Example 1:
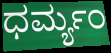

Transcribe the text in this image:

ಧರ್ಮ್ಯಂ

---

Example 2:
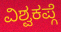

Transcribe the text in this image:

ವಿಶ್ವಕಪ್ಗೆ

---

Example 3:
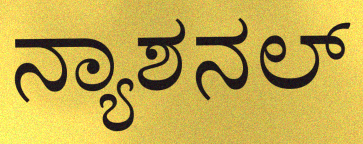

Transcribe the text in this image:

ನ್ಯಾಶನಲ್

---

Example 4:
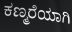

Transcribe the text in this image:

ಕಣ್ಮರೆಯಾಗಿ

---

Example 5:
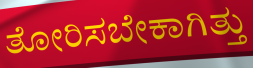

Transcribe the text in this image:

ತೋರಿಸಬೇಕಾಗಿತ್ತು